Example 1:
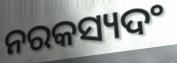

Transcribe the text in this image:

ନରକସ୍ୟଦଂ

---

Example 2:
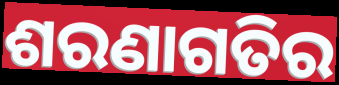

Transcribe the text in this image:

ଶରଣାଗତିର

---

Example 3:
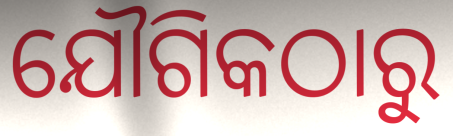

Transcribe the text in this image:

ଯୌଗିକଠାରୁ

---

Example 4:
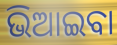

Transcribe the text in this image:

ଭିଆଇବା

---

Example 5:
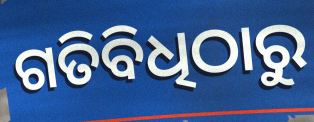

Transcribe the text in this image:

ଗତିବିଧିଠାରୁ